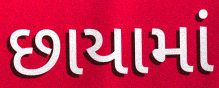
છાયામાં